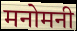
मनोमनी